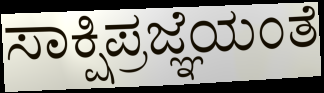
ಸಾಕ್ಷಿಪ್ರಜ್ಞೆಯಂತೆ